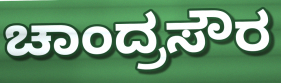
ಚಾಂದ್ರಸೌರ